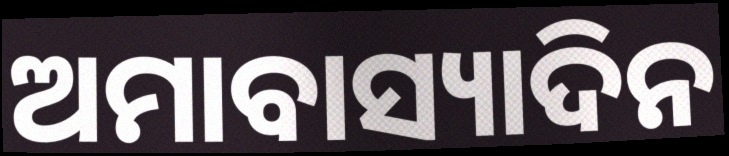
ଅମାବାସ୍ୟାଦିନ